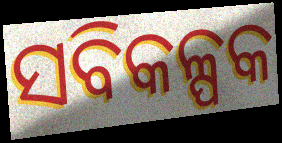
ସବିକଳ୍ପକ